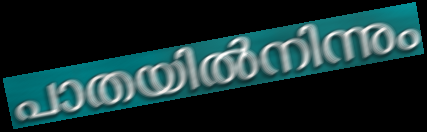
പാതയിൽനിന്നും